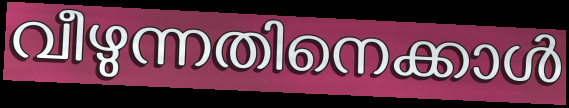
വീഴുന്നതിനെക്കാൾ